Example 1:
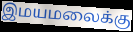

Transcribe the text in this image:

இமயமலைக்கு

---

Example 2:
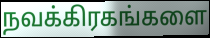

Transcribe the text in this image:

நவக்கிரகங்களை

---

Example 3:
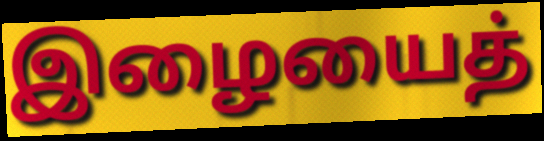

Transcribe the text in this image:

இழையைத்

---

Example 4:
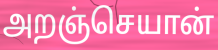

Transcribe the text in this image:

அறஞ்செயான்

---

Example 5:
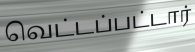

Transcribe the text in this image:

வெட்டப்பட்டார்